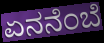
ಏನನೆಂಬೆ